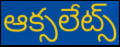
ఆక్సలేట్స్